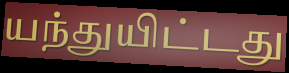
யந்துயிட்டது